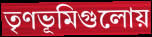
তৃণভূমিগুলোয়